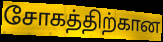
சோகத்திற்கான